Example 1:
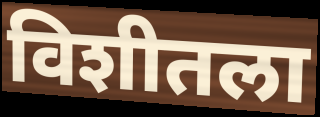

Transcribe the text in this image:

विशीतला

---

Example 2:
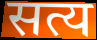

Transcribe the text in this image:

सत्य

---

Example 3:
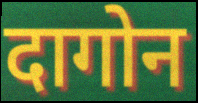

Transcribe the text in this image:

दागोन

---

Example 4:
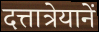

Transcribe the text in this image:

दत्तात्रेयानें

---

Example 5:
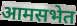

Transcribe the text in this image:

आमसभेत